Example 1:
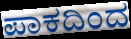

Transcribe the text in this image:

ಪಾಕದಿಂದ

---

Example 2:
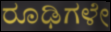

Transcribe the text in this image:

ರೂಢಿಗಳೇ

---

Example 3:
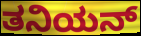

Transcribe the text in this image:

ತನಿಯನ್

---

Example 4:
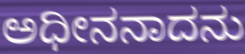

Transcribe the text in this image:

ಅಧೀನನಾದನು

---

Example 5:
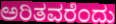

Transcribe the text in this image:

ಅರಿತವರೆಂದು